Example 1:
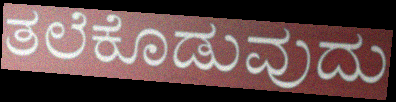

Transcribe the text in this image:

ತಲೆಕೊಡುವುದು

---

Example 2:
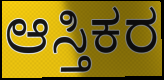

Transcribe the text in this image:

ಆಸ್ತಿಕರ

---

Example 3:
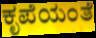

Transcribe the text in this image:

ಕೃಪೆಯಂತೆ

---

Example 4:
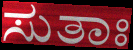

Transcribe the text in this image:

ಸುತಾಃ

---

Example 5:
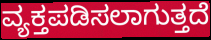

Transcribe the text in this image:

ವ್ಯಕ್ತಪಡಿಸಲಾಗುತ್ತದೆ